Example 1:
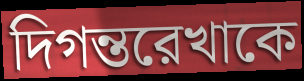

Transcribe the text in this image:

দিগন্তরেখাকে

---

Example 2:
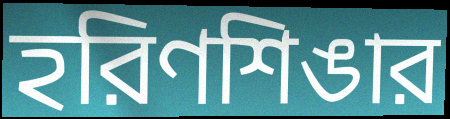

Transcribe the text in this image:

হরিণশিঙার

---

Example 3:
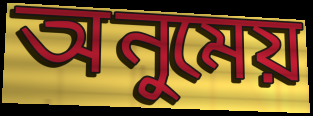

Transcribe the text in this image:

অনুমেয়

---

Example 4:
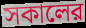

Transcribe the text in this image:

সকালের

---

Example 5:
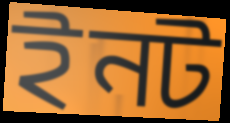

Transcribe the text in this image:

ইনট